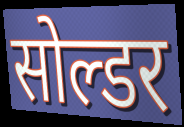
सोल्डर